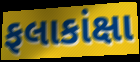
ફલાકાંક્ષા